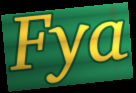
Fya